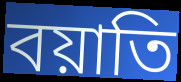
বয়াতি